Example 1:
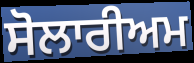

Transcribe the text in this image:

ਸੋਲਾਰੀਅਮ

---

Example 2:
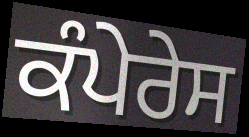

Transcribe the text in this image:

ਕੰਪੇਰੇਸ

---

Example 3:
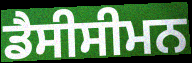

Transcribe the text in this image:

ਡੈਸੀਸੀਮਨ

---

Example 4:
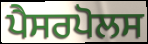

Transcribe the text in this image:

ਪੈਸਰਪੋਲਸ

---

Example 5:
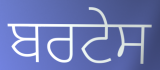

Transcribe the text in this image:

ਬਰਟੇਸ